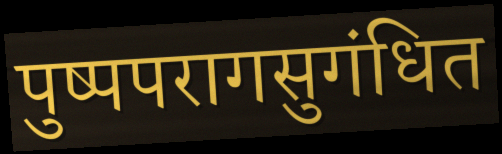
पुष्पपरागसुगंधित